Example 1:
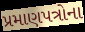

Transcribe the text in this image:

પ્રમાણપત્રોના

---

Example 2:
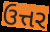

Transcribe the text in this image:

ઉત્તર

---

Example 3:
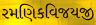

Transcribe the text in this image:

રમણિકવિજયજી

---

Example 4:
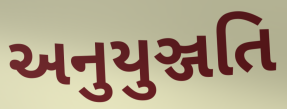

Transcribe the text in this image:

અનુયુઞ્જતિ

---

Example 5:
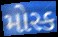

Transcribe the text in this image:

મોસ્ક